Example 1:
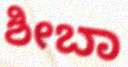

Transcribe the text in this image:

ಶೀಬಾ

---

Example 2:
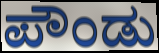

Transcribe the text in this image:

ಪೌಂಡು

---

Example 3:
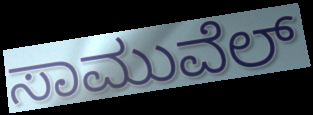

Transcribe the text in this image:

ಸಾಮುವೆಲ್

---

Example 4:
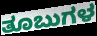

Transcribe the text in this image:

ತೂಬುಗಳ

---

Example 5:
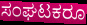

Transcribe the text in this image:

ಸಂಘಟಕರೂ